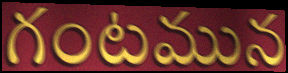
గంటమున